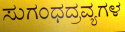
ಸುಗಂಧದ್ರವ್ಯಗಳ